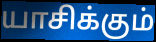
யாசிக்கும்